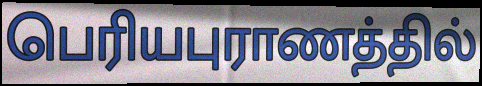
பெரியபுராணத்தில்